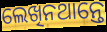
ଲେଖିନଥାନ୍ତେ